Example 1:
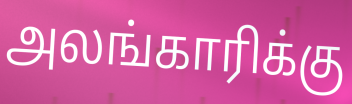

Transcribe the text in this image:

அலங்காரிக்கு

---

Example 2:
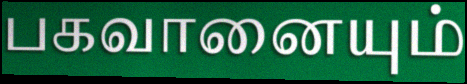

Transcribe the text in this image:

பகவானையும்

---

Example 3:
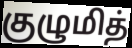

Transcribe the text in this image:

குழுமித்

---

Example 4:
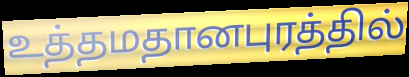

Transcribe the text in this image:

உத்தமதானபுரத்தில்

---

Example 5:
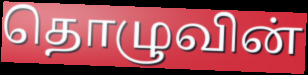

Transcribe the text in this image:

தொழுவின்